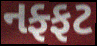
નફ્ફટ